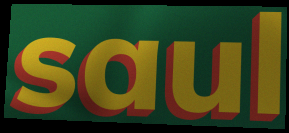
saul